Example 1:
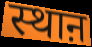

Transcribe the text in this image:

स्थाऩ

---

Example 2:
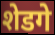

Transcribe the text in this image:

शेडगे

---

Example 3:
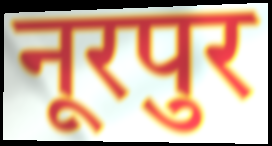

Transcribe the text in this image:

नूरपुर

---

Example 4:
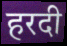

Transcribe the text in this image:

हरदी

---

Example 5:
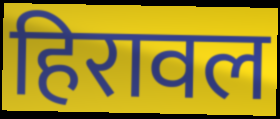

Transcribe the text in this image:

हिरावल